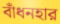
বাঁধনহার